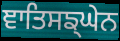
ਞਾਤਿਸਙ੍ਘੇਨ